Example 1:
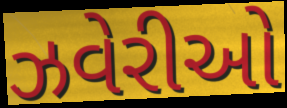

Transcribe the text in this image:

ઝવેરીઓ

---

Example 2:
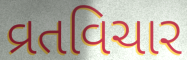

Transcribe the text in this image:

વ્રતવિચાર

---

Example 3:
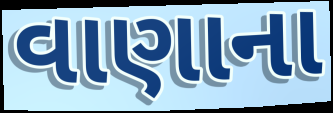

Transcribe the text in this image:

વાણાના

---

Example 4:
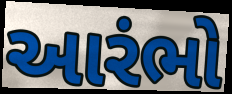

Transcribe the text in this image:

આરંભો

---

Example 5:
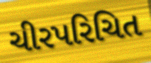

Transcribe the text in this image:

ચીરપરિચિત